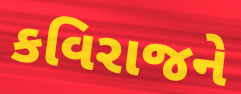
કવિરાજને